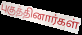
புகுத்தினார்கள்